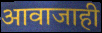
आवाजाही